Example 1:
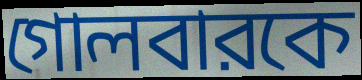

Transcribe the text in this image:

গোলবারকে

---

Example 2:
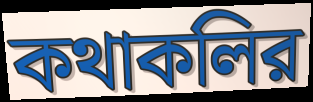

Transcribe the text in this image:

কথাকলির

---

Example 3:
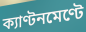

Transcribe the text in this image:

ক্যাণ্টনমেণ্টে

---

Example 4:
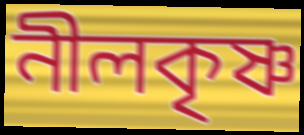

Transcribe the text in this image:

নীলকৃষ্ণ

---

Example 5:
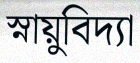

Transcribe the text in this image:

স্নায়ুবিদ্যা